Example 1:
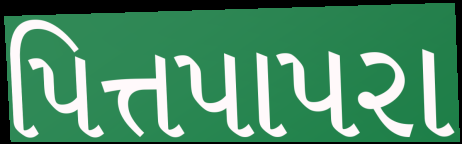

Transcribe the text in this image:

પિત્તપાપરા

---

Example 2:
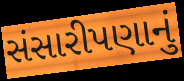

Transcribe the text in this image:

સંસારીપણાનું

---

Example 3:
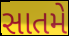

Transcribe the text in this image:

સાતમે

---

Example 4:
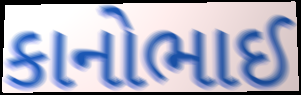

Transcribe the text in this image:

કાનોભાઈ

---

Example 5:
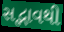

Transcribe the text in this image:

સદ્ભાવથી